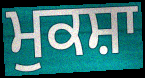
ਮੁਕਸ਼ਾ